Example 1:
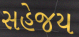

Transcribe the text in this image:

સહેજય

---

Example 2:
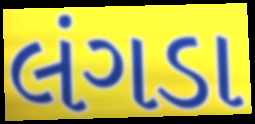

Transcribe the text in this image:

લંગડા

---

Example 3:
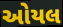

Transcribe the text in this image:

ઓયલ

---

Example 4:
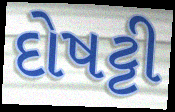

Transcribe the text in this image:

દોષટ્ટી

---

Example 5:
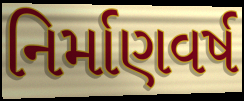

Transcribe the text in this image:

નિર્માણવર્ષ